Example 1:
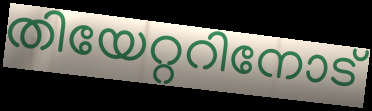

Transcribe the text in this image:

തിയേറ്ററിനോട്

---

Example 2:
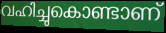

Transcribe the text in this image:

വഹിച്ചുകൊണ്ടാണ്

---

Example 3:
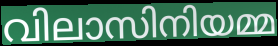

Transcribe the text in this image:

വിലാസിനിയമ്മ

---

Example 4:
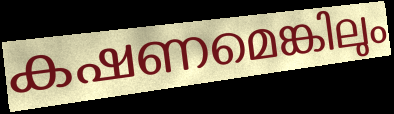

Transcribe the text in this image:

കഷണമെങ്കിലും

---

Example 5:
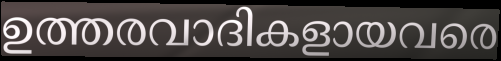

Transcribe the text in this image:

ഉത്തരവാദികളായവരെ